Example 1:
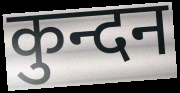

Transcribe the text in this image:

कुन्‍दन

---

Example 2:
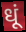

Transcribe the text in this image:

धूं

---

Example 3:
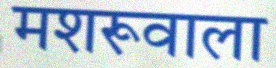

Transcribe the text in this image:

मशरूवाला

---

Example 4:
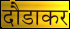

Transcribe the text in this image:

दौडाकर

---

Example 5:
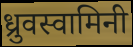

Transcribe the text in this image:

ध्रुवस्वामिनी